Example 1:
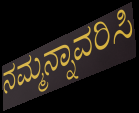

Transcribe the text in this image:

ನಮ್ಮನ್ನಾವರಿಸಿ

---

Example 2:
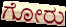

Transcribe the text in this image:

ಗೋರು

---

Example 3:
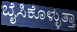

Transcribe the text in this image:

ಬೈಸಿಕೊಳ್ಳುತ್ತಾ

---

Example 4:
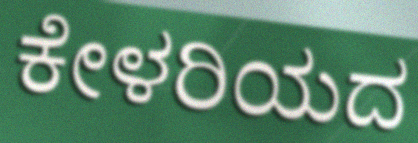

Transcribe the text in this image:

ಕೇಳರಿಯದ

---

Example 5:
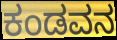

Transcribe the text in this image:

ಕಂಡವನ